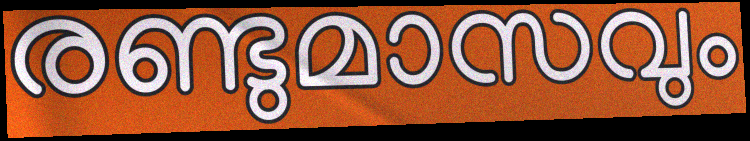
രണ്ടുമാസവും